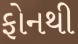
ફોનથી